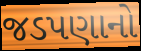
જડપણાનો